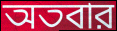
অতবার